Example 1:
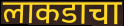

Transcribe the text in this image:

लाकडाचा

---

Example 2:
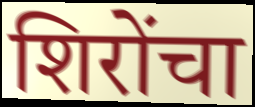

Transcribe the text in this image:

शिरोंचा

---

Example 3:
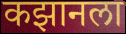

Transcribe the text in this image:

कझानला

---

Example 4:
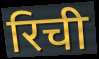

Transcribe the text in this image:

रिची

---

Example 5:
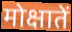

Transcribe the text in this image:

मोक्षातें